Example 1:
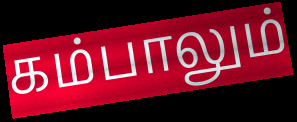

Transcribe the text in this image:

கம்பாலும்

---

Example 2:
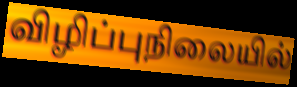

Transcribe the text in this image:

விழிப்புநிலையில்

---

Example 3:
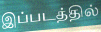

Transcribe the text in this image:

இப்படத்தில்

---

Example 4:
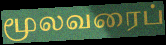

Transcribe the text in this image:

மூலவரைப்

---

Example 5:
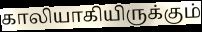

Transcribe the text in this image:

காலியாகியிருக்கும்